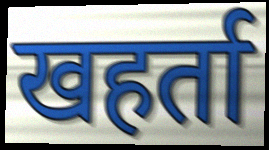
खहर्ता